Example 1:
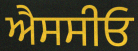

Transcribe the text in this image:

ਐਸਸੀਓ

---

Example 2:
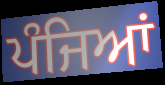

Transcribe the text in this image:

ਪੰਜਿਆਂ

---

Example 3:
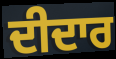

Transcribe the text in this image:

ਦੀਦਾਰ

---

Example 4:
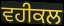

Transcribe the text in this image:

ਵਹੀਕਲ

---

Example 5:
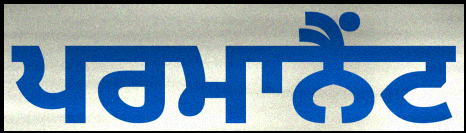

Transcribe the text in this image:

ਪਰਮਾਨੈਂਟ